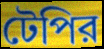
টেপির